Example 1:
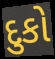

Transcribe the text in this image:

દુકો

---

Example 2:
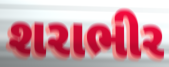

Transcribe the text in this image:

શરાભીર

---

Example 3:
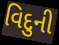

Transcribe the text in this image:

વિદુની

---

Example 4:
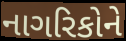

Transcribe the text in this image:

નાગરિકોને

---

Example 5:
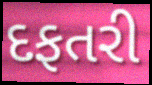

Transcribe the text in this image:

દફતરી